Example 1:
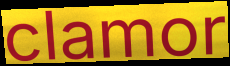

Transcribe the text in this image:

clamor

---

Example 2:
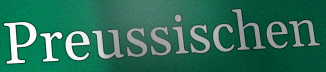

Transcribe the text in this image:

Preussischen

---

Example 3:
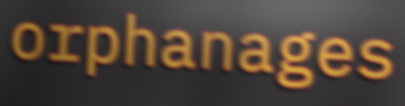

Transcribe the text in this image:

orphanages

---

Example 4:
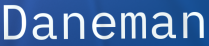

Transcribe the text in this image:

Daneman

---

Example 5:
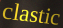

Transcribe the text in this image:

clastic